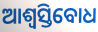
ଆଶ୍ଵସ୍ତିବୋଧ